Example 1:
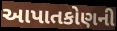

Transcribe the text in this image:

આપાતકોણની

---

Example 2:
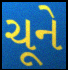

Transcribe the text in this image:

ચૂને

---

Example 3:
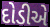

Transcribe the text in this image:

દોડીએ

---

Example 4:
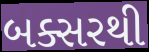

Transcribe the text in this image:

બક્સરથી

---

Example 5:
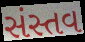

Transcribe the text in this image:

સંસ્તવ